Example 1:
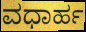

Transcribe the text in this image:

ವಧಾರ್ಹ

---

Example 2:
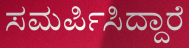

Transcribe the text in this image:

ಸಮರ್ಪಿಸಿದ್ದಾರೆ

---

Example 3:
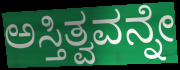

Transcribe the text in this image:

ಅಸ್ತಿತ್ವವನ್ನೇ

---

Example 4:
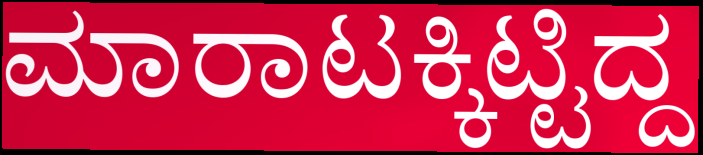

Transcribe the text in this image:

ಮಾರಾಟಕ್ಕಿಟ್ಟಿದ್ದ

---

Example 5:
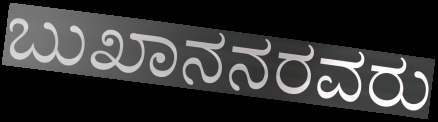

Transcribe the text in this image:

ಬುಖಾನನರವರು